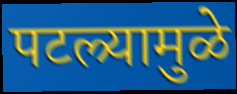
पटल्यामुळे